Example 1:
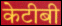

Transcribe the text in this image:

केटीबी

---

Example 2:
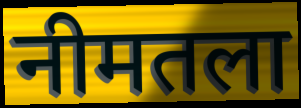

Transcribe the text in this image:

नीमतला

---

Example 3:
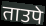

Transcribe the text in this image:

ताउपे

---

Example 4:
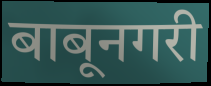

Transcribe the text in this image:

बाबूनगरी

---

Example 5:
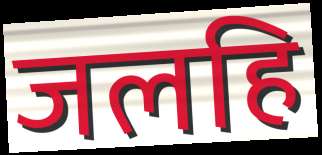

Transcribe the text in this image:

जलहि